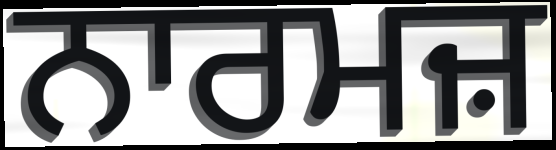
ਨਾਰਮਜ਼